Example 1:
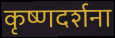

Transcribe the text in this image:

कृष्णदर्शना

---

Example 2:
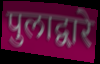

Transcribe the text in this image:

पुलाद्वारे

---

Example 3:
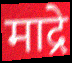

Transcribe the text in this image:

माद्रे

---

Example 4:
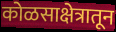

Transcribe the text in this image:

कोळसाक्षेत्रातून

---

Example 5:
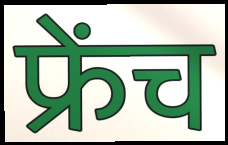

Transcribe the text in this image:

फ्रेंच